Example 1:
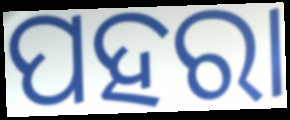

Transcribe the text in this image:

ପହରା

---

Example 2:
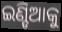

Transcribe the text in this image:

ଇଣ୍ଡିଆକୁ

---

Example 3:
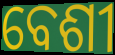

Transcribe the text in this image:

ବେଶୀ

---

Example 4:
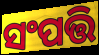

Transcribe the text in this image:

ସଂପତ୍ତି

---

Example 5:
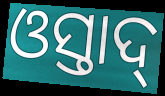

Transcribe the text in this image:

ଓସ୍ତାଦ୍